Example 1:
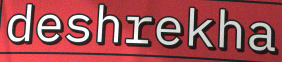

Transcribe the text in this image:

deshrekha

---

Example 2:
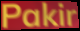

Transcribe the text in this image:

Pakir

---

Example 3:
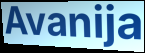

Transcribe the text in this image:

Avanija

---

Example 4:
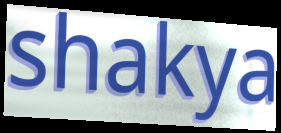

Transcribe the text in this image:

shakya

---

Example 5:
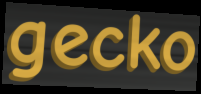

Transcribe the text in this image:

gecko